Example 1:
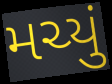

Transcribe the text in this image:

મચ્યું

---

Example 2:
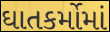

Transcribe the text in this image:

ઘાતકર્મોમાં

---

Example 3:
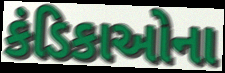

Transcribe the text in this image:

કંડિકાઓના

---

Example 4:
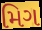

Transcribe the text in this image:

મિગ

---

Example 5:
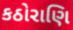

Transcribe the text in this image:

કઠોરાણિ